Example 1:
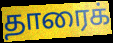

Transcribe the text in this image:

தாரைக்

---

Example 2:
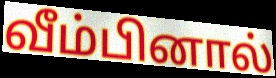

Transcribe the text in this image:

வீம்பினால்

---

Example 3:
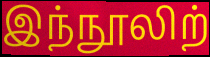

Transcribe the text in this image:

இந்நூலிற்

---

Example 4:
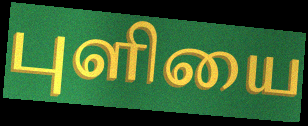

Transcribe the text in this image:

புளியை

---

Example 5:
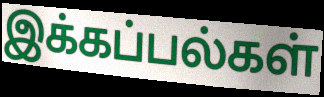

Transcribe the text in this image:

இக்கப்பல்கள்